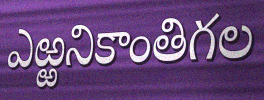
ఎఱ్ఱనికాంతిగల